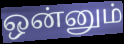
ஒன்னும்